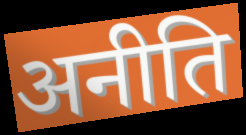
अनीति